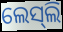
ଲେସ୍‍ଲି